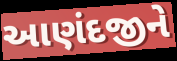
આણંદજીને